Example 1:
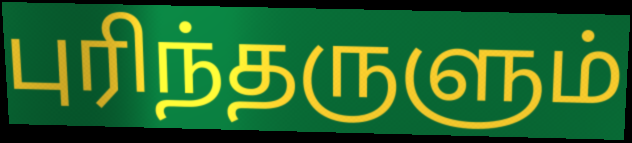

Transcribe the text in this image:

புரிந்தருளும்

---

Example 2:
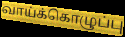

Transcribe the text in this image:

வாய்க்கொழுப்பு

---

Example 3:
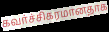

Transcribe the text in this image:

கவர்ச்சிகரமானதாக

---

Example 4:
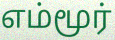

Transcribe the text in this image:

எம்மூர்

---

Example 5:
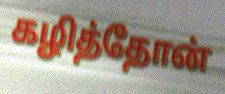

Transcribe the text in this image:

கழித்தோன்